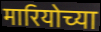
मारियोच्या